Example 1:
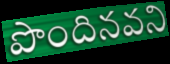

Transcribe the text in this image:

పొందినవని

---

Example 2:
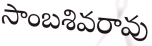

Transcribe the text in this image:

సాంబశివరావు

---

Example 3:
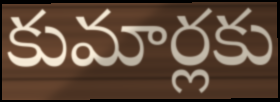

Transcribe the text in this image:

కుమార్లకు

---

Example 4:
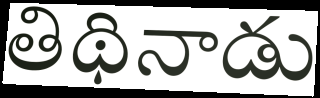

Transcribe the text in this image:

తిథినాడు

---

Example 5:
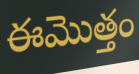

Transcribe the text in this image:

ఈమొత్తం